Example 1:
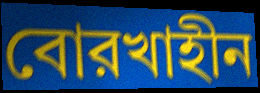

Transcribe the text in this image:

বোরখাহীন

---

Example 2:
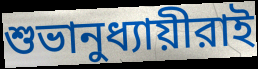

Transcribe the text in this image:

শুভানুধ্যায়ীরাই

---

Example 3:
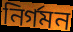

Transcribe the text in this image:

নির্গমন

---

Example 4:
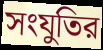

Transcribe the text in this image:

সংযুতির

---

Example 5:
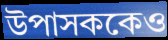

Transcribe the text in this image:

উপাসককেও